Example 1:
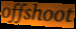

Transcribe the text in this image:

offshoot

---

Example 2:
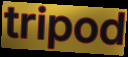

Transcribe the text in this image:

tripod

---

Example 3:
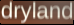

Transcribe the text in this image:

dryland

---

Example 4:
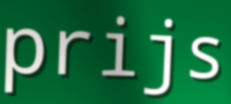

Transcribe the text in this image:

prijs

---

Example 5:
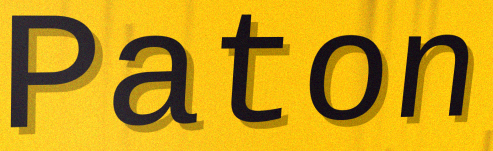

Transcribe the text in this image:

Paton